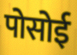
पोसोई